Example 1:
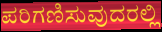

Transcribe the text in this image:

ಪರಿಗಣಿಸುವುದರಲ್ಲಿ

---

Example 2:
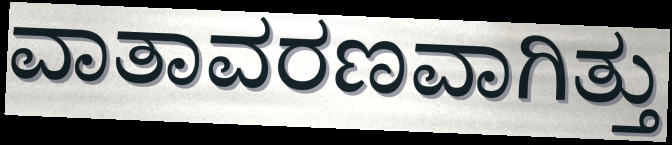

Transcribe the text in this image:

ವಾತಾವರಣವಾಗಿತ್ತು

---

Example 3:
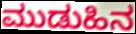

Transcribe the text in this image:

ಮುಡುಹಿನ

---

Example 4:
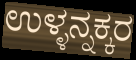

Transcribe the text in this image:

ಉಳ್ಳನ್ನಕ್ಕರ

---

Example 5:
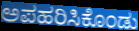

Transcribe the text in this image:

ಅಪಹರಿಸಿಕೊಂಡು